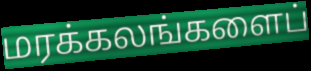
மரக்கலங்களைப்